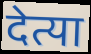
देत्या